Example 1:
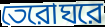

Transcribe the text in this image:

তেরোঘরে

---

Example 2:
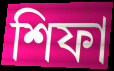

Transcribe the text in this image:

শিফা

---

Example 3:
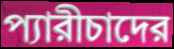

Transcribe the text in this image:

প্যারীচাদের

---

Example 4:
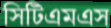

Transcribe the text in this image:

সিটিএমএস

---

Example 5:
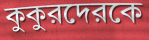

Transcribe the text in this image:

কুকুরদেরকে